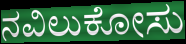
ನವಿಲುಕೋಸು